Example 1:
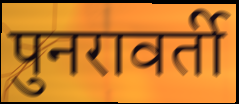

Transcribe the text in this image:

पुनरावर्ती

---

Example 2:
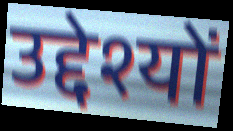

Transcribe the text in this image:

उद्देश्यों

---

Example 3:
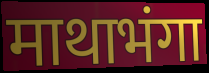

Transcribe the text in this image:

माथाभंगा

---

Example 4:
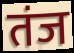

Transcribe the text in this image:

तंज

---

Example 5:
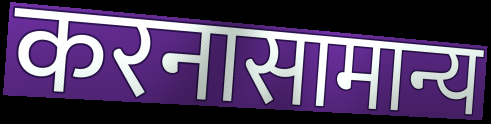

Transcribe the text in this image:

करनासामान्य